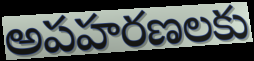
అపహరణలకు